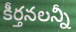
కీర్తనలన్నీ